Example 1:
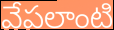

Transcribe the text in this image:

వేపలాంటి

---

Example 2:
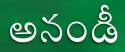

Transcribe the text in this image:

అనండీ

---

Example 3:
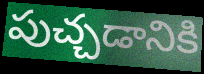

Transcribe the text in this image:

పుచ్చడానికి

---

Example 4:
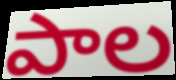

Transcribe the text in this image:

పాల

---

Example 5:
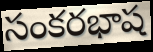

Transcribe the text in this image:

సంకరభాష